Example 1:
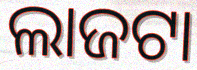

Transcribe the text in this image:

ଲାଜଟା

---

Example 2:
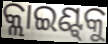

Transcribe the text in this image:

କ୍ଲାଇଣ୍ଟ୍‌କୁ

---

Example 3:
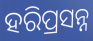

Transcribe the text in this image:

ହରିପ୍ରସନ୍ନ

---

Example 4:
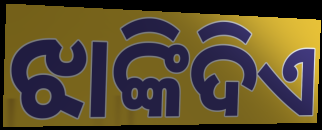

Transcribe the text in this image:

ଝାଙ୍କିଦିଏ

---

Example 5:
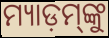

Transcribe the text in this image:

ମ୍ୟାଡ଼ମ୍‌ଙ୍କୁ